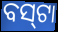
ବସ୍‍ଟା